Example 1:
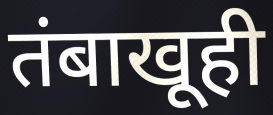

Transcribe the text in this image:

तंबाखूही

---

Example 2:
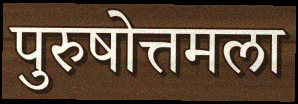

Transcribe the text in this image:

पुरुषोत्तमला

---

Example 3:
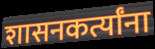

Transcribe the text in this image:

शासनकर्त्यांना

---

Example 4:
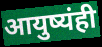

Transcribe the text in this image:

आयुष्यंही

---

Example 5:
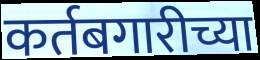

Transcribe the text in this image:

कर्तबगारीच्या